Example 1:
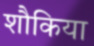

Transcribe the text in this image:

शौकिया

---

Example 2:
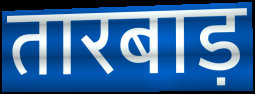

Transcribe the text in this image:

तारबाड़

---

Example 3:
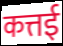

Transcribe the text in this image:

कत्तई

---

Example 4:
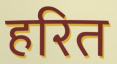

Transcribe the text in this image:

हरित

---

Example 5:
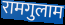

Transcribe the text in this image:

रामगुलाम